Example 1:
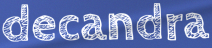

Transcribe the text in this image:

decandra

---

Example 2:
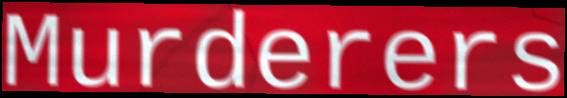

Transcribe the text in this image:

Murderers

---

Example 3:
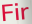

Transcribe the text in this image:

Fir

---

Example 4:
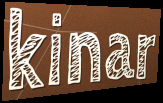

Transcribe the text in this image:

kinar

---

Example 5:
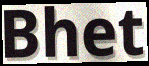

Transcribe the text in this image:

Bhet